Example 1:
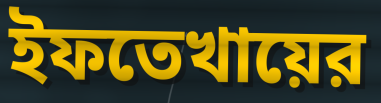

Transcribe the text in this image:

ইফতেখায়ের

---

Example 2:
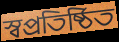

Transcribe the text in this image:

স্বপ্রতিষ্ঠিত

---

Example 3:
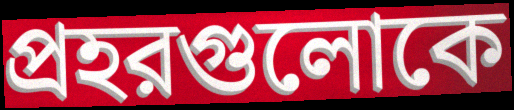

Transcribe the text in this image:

প্রহরগুলোকে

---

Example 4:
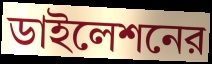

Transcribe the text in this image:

ডাইলেশনের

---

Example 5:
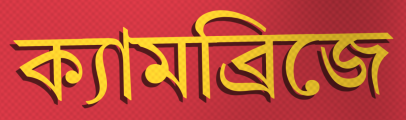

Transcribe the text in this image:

ক্যামব্রিজে